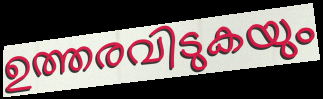
ഉത്തരവിടുകയും